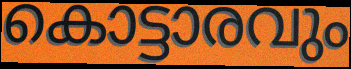
കൊട്ടാരവും